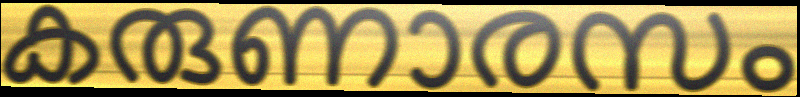
കരുണാരസം